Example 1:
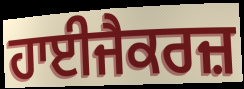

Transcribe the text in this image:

ਹਾਈਜੈਕਰਜ਼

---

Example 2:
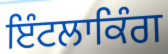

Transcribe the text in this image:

ਇੰਟਲਾਕਿੰਗ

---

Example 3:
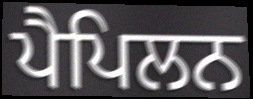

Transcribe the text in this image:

ਪੈਪਿਲਨ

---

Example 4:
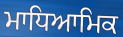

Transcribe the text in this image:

ਮਾਧਿਆਮਿਕ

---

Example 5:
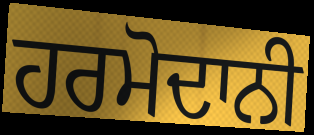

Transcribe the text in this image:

ਹਰਮੋਦਾਨੀ